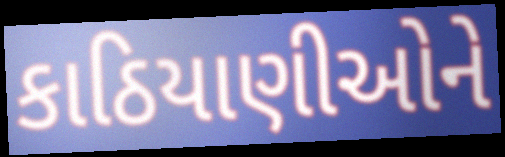
કાઠિયાણીઓને